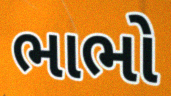
ભાભો